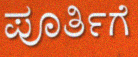
ಪೂರ್ತಿಗೆ